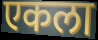
एकला